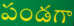
పండగా